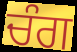
ਚੰਗ